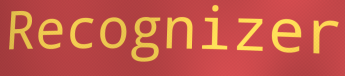
Recognizer